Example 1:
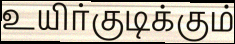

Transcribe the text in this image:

உயிர்குடிக்கும்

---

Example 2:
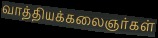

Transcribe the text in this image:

வாத்தியக்கலைஞர்கள்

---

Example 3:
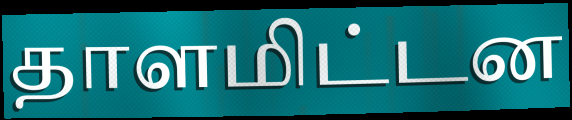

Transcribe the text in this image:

தாளமிட்டன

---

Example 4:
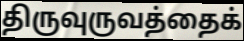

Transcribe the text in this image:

திருவுருவத்தைக்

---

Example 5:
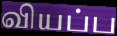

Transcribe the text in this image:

வியப்ப